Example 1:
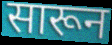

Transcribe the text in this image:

सारून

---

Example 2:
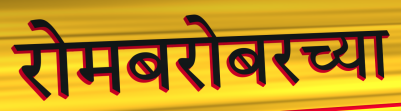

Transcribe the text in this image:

रोमबरोबरच्या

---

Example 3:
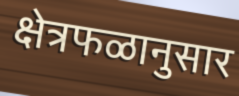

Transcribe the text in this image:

क्षेत्रफळानुसार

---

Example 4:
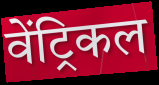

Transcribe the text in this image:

वेंट्रिकल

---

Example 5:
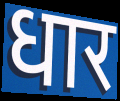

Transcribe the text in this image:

धार